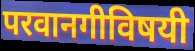
परवानगीविषयी